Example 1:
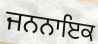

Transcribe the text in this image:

ਜਨਨਾਇਕ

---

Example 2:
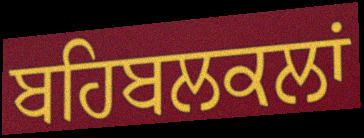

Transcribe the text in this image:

ਬਹਿਬਲਕਲਾਂ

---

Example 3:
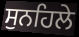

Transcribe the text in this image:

ਸੁਨਹਿਲੇ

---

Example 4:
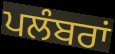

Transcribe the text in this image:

ਪਲੰਬਰਾਂ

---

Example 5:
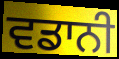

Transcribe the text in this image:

ਵਡਾਨੀ